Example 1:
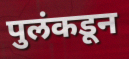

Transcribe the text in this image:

पुलंकडून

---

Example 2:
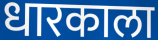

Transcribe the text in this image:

धारकाला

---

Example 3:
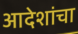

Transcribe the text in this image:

आदेशांचा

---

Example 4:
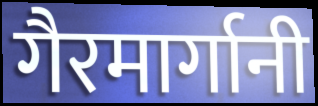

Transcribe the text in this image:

गैरमार्गानी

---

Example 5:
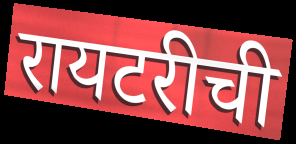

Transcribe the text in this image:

रायटरीची